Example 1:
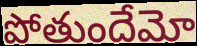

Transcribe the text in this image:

పోతుందేమో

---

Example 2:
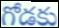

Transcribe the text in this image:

గోడకు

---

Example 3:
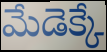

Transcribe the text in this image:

మేడెక్కే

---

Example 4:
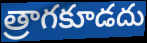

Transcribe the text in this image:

త్రాగకూడదు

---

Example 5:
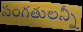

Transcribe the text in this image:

సంగతులన్నీ